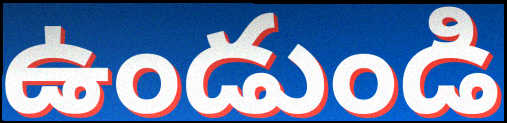
ఉండుండి